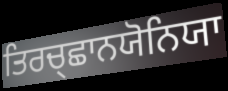
ਤਿਰਚ੍ਛਾਨਯੋਨਿਯਾ